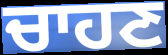
ਚਾਹਣ